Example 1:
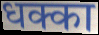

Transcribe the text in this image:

धक्का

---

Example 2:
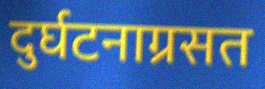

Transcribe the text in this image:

दुर्घटनाग्रसत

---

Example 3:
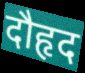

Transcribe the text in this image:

दौहृद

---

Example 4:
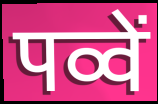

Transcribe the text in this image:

पव्वें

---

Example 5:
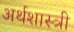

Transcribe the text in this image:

अर्थशास्त्री